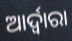
ଆର୍ଦ୍ୱାରା